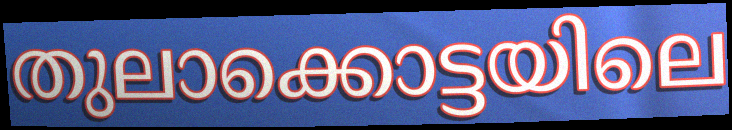
തുലാക്കൊട്ടയിലെ